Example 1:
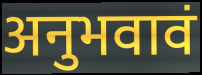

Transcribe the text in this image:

अनुभवावं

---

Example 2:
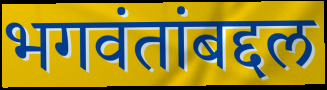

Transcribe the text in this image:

भगवंतांबद्दल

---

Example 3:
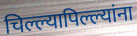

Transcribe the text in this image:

चिल्ल्यापिल्ल्यांना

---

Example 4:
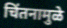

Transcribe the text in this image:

चिंतनामुळे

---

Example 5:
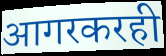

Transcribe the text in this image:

आगरकरही